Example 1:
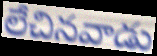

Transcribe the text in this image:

లేచినవాడు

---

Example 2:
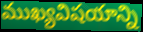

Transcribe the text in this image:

ముఖ్యవిషయాన్ని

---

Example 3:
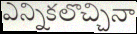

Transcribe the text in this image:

ఎన్నికలొచ్చినా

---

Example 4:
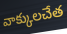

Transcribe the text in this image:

వాక్కులచేత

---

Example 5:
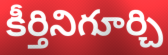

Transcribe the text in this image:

కీర్తినిగూర్చి